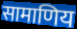
सामाणिय